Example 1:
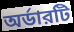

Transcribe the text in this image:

অর্ডারটি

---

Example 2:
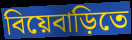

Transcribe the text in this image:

বিয়েবাড়িতে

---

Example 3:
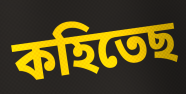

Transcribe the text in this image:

কহিতেছ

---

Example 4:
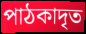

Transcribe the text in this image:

পাঠকাদৃত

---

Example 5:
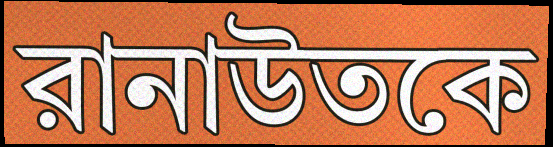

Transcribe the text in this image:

রানাউতকে